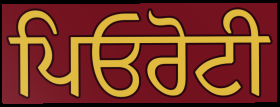
ਪਿਓਰੋਟੀ